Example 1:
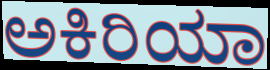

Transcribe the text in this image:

ಅಕಿರಿಯಾ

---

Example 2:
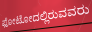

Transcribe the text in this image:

ಫೋಟೋದಲ್ಲಿರುವವರು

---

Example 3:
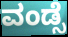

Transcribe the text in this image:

ವಂಡ್ಸೆ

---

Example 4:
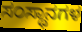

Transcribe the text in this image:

ಸಂಸ್ಥಾನಗಳ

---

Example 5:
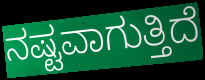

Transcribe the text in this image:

ನಷ್ಟವಾಗುತ್ತಿದೆ